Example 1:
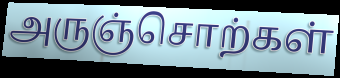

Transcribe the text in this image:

அருஞ்சொற்கள்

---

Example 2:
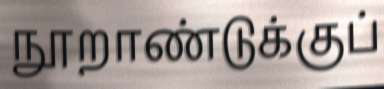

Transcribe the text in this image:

நூறாண்டுக்குப்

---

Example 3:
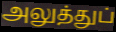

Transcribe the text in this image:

அலுத்துப்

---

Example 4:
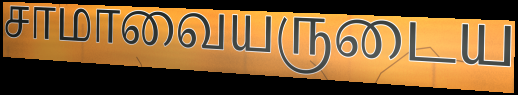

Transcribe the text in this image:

சாமாவையருடைய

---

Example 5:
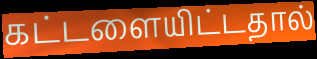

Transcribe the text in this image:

கட்டளையிட்டதால்